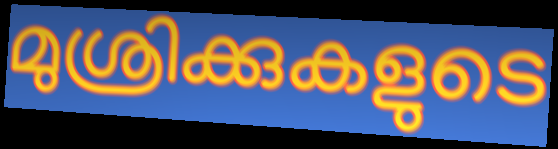
മുശ്രിക്കുകളുടെ